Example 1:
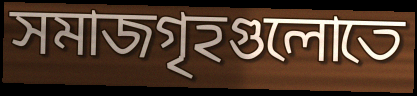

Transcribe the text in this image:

সমাজগৃহগুলোতে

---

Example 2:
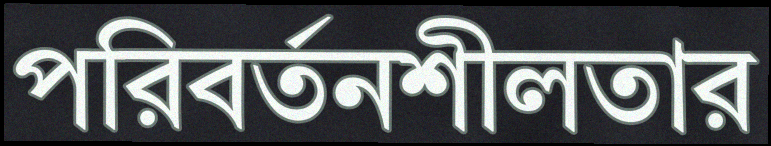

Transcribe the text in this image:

পরিবর্তনশীলতার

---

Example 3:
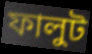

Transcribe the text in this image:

ফালুট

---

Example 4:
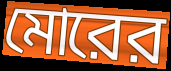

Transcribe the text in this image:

মোরের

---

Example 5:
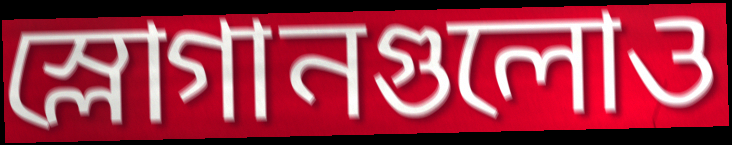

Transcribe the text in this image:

স্লোগানগুলোও